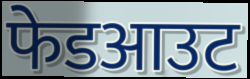
फेडआउट